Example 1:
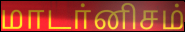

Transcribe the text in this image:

மாடர்னிசம்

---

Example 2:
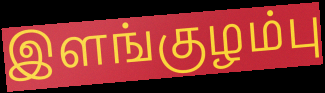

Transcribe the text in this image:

இளங்குழம்பு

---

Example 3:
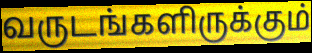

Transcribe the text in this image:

வருடங்களிருக்கும்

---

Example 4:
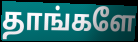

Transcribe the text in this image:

தாங்களே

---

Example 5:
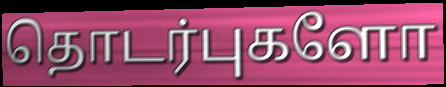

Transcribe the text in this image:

தொடர்புகளோ